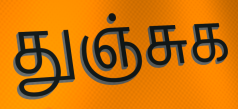
துஞ்சுக